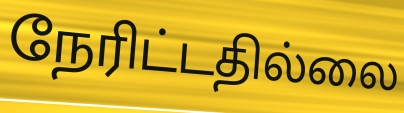
நேரிட்டதில்லை